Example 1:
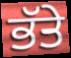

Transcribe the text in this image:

ਭੱਤੇ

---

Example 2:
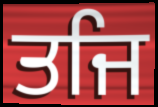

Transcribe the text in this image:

ਤਜਿ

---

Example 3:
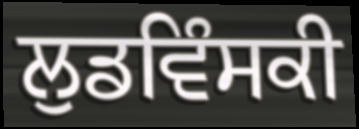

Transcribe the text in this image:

ਲੁਡਵਿੰਸਕੀ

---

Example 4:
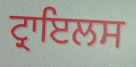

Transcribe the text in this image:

ਟ੍ਰਾਇਲਸ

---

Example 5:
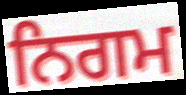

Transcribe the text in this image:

ਨਿਗਮ